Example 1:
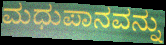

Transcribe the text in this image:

ಮಧುಪಾನವನ್ನು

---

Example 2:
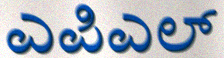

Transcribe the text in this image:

ಎಪಿಎಲ್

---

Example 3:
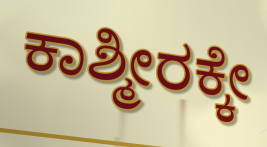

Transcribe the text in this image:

ಕಾಶ್ಮೀರಕ್ಕೇ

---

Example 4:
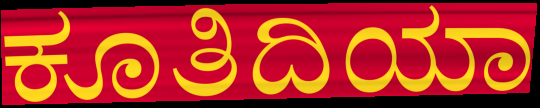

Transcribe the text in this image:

ಕೂತಿದಿಯಾ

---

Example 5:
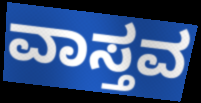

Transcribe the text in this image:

ವಾಸ್ತವ